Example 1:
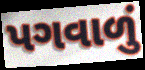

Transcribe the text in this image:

પગવાળું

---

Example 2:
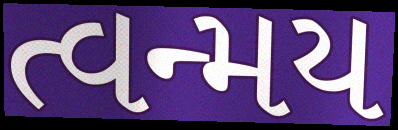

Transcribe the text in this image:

ત્વન્મય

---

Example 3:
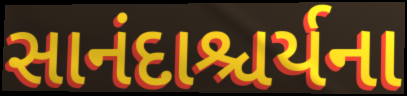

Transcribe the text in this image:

સાનંદાશ્ચર્યના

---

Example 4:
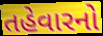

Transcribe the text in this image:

તહેવારનો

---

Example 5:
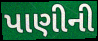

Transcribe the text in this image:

પાણીની